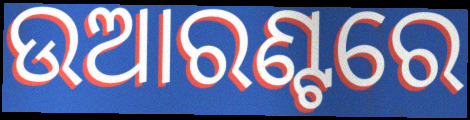
ଉଆରଣ୍ଟରେ